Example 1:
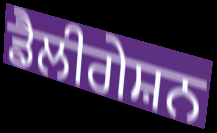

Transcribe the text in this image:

ਡੈਲੀਗੇਸ਼ਨ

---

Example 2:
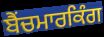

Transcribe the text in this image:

ਬੈਂਚਮਾਰਕਿੰਗ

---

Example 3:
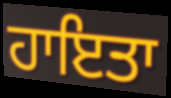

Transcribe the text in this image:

ਹਾਇਤਾ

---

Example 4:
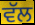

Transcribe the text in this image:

ਵੱਲ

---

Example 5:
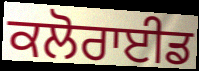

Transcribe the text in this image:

ਕਲੋਰਾਈਡ